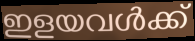
ഇളയവൾക്ക്